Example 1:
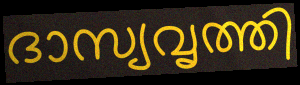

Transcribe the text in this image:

ദാസ്യവൃത്തി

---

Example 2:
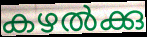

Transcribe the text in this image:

കഴൽക്കു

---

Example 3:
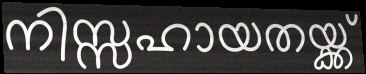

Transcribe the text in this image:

നിസ്സഹായതയ്ക്ക്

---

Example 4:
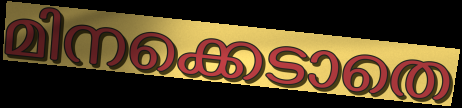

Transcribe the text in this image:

മിനക്കെടാതെ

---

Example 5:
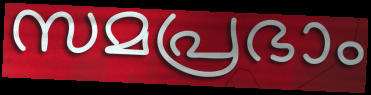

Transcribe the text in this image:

സമപ്രഭാം